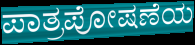
ಪಾತ್ರಪೋಷಣೆಯ